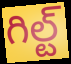
గిల్ట్